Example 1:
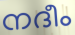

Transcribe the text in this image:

നദീം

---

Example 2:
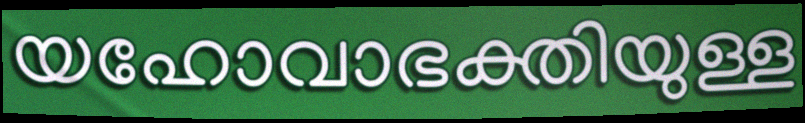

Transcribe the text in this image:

യഹോവാഭക്തിയുള്ള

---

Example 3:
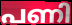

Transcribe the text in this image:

പണി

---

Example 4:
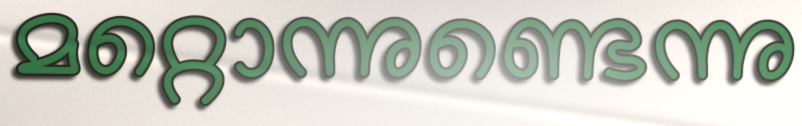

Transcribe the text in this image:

മറ്റൊന്നുണ്ടെന്നു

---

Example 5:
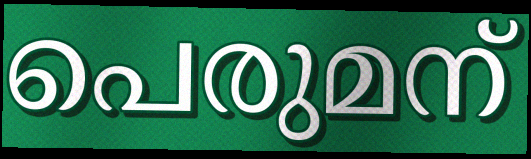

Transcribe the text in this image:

പെരുമന്